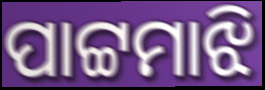
ପାଟ୍ଟମାଝି